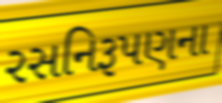
રસનિરૂપણના